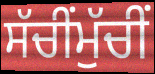
ਸੱਚੀਂਮੁੱਚੀਂ